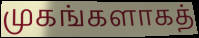
முகங்களாகத்